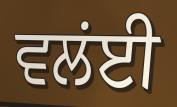
ਵਲਂਈ